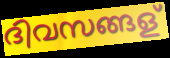
ദിവസങ്ങള്